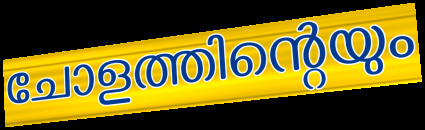
ചോളത്തിന്റെയും